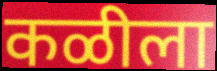
कळीला